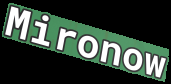
Mironow